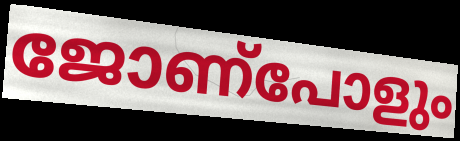
ജോണ്പോളും